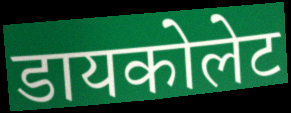
डायकोलेट